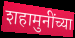
शहामुनींच्या